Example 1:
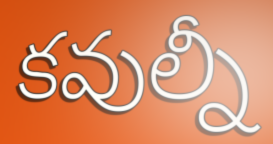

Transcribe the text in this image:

కవుల్నీ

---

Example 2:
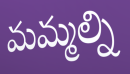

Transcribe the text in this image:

మమ్మల్ని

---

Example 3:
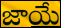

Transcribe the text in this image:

జాయే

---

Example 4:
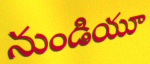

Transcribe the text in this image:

నుండియూ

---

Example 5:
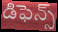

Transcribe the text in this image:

డిఫెన్స్